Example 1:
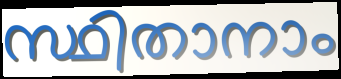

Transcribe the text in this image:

സ്ഥിതാനാം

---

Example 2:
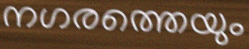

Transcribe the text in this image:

നഗരത്തെയും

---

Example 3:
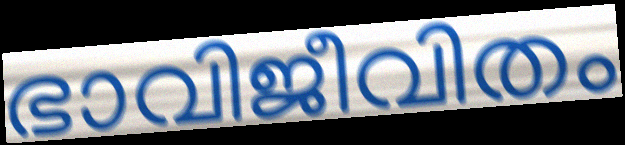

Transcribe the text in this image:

ഭാവിജീവിതം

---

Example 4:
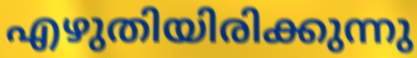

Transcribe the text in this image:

എഴുതിയിരിക്കുന്നു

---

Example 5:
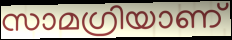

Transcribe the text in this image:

സാമഗ്രിയാണ്